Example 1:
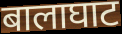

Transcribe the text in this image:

बालाघाट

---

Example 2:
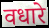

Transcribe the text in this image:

वधारे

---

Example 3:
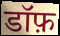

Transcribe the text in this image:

डॉफ़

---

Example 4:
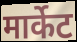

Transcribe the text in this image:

मार्केट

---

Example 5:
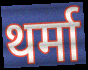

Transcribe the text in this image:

थर्मा